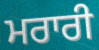
ਮਰਾਰੀ